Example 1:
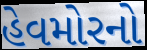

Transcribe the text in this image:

હેવમોરનો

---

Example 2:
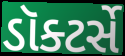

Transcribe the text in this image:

ડૉક્ટર્સે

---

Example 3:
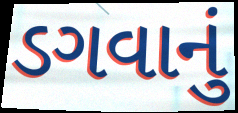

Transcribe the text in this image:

ડગવાનું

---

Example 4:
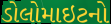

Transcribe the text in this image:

ડોલોમાઇટનો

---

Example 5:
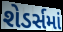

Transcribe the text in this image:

શેડર્સમાં